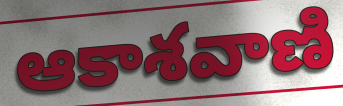
ఆకాశవాణి